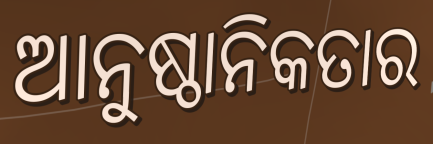
ଆନୁଷ୍ଠାନିକତାର